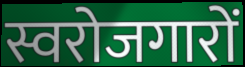
स्वरोजगारों